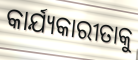
କାର୍ଯ୍ୟକାରୀତାକୁ